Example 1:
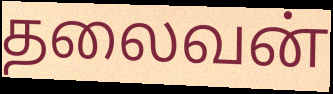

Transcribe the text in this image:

தலைவன்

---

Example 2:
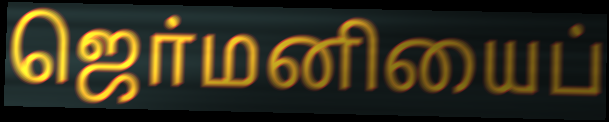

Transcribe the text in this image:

ஜெர்மனியைப்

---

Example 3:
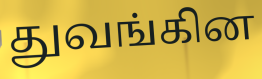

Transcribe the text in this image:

துவங்கின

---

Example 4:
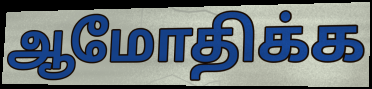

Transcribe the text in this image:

ஆமோதிக்க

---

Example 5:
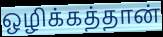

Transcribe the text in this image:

ஒழிக்கத்தான்